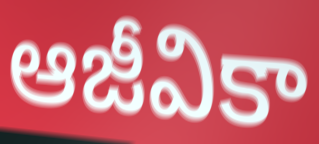
ఆజీవికా